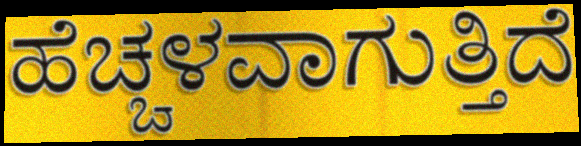
ಹೆಚ್ಚಳವಾಗುತ್ತಿದೆ